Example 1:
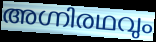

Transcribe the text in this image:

അഗ്നിരഥവും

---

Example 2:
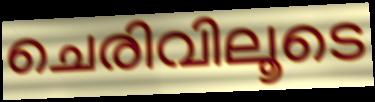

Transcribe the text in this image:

ചെരിവിലൂടെ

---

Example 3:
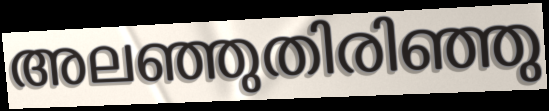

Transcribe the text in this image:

അലഞ്ഞുതിരിഞ്ഞു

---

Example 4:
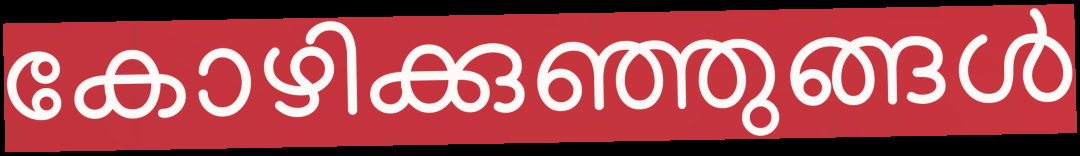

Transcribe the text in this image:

കോഴിക്കുഞ്ഞുങ്ങൾ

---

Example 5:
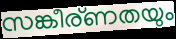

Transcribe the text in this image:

സങ്കീര്ണതയും